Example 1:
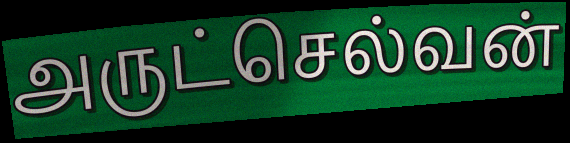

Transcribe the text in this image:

அருட்செல்வன்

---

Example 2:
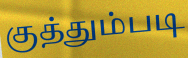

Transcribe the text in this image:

குத்தும்படி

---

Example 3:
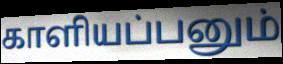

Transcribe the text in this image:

காளியப்பனும்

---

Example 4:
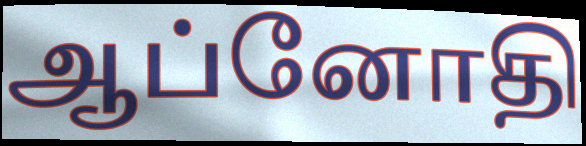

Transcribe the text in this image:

ஆப்னோதி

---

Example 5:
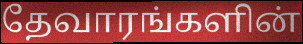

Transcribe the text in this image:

தேவாரங்களின்